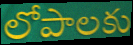
లోపాలకు